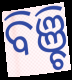
ବିଞ୍ଚି